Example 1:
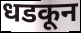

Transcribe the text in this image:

धडकून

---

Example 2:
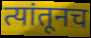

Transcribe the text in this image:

त्यांतूनच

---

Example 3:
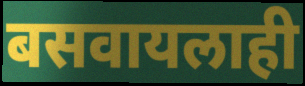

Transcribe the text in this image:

बसवायलाही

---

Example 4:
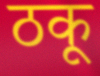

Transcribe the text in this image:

ठकू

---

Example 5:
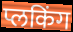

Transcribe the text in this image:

प्लकिंग